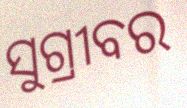
ସୁଗ୍ରୀବର